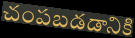
చంపబడడానికి